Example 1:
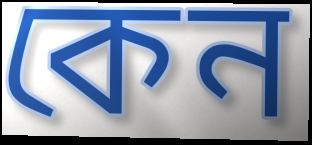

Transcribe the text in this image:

কেন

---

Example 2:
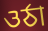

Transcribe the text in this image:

ওঠা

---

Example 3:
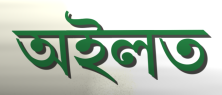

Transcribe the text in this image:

অইলত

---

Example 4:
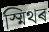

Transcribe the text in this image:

স্মিথৰ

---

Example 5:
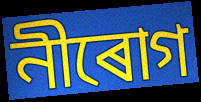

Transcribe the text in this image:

নীৰোগ